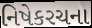
નિષેકરચના